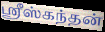
ஸ்ரீஸ்கந்தன்